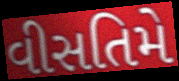
વીસતિમે